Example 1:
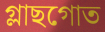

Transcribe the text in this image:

গ্লাছগোত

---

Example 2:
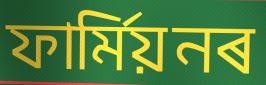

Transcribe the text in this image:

ফাৰ্মিয়নৰ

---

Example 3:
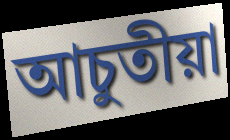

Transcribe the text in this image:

আচুতীয়া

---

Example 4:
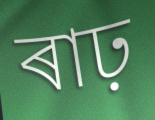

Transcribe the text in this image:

ৰাঢ়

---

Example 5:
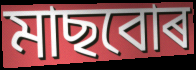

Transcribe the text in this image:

মাছবোৰ